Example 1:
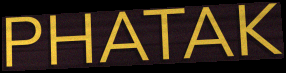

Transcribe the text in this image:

PHATAK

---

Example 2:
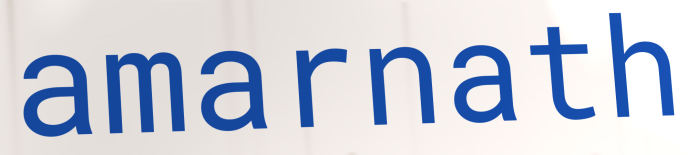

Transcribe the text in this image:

amarnath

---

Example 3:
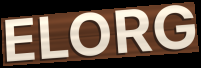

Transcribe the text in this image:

ELORG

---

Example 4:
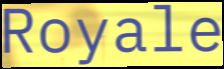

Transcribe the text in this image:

Royale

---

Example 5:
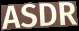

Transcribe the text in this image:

ASDR